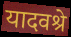
यादवश्रे